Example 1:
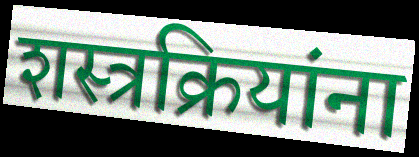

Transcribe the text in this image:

शस्त्रक्रियांना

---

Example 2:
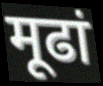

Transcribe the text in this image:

मूढां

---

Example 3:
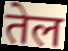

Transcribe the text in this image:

तेल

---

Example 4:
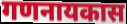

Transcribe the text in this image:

गणनायकास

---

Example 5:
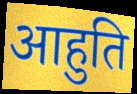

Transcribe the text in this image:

आहुति